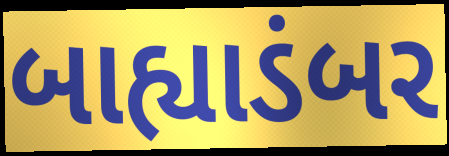
બાહ્યાડંબર